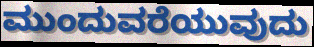
ಮುಂದುವರೆಯುವುದು